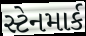
સ્ટેનમાર્ક